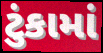
ટુંકામાં